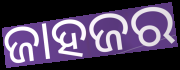
ଜାହଜର